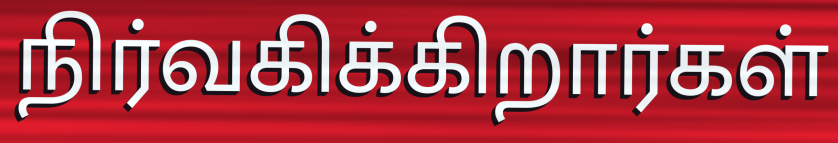
நிர்வகிக்கிறார்கள்